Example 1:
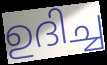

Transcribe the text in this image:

ഉദിച്ച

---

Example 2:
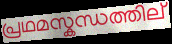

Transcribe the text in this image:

പ്രഥമസ്കന്ധത്തില്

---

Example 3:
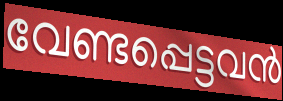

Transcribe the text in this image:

വേണ്ടപ്പെട്ടവൻ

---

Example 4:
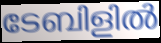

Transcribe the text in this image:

ടേബിളിൽ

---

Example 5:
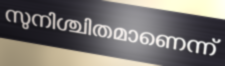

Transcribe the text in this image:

സുനിശ്ചിതമാണെന്ന്